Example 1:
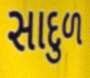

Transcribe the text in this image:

સાદુળ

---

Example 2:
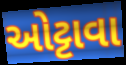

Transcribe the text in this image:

ઓટ્ટાવા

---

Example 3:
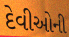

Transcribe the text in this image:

દેવીઓની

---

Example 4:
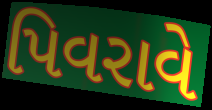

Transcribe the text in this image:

પિવરાવે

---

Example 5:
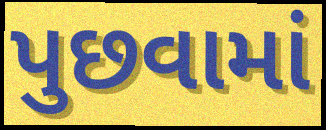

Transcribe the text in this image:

પુછવામાં